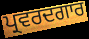
ਪ੍ਰਵਰਦਗਾਰ